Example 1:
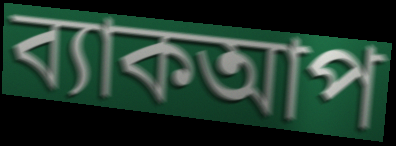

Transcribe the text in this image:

ব্যাকআপ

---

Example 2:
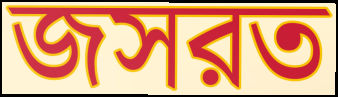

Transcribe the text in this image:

জসরত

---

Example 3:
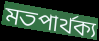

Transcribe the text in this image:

মতপার্থক্য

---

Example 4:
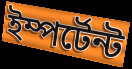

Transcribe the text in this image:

ইম্পর্টেন্ট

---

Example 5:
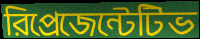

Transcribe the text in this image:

রিপ্রেজেন্টেটিভ